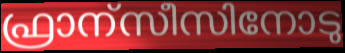
ഫ്രാന്സീസിനോടു